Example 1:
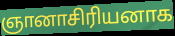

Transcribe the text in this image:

ஞானாசிரியனாக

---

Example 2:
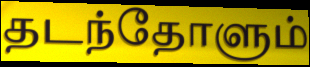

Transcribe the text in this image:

தடந்தோளும்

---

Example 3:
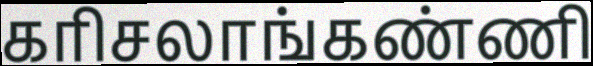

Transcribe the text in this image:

கரிசலாங்கண்ணி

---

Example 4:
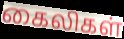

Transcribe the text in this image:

கைலிகள்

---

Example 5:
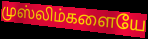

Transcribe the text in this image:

முஸ்லிம்களையே